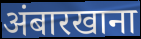
अंबारखाना